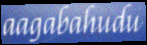
aagabahudu